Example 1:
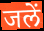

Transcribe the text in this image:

जलें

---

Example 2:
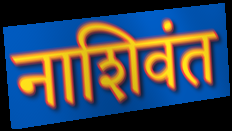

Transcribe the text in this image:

नाशिवंत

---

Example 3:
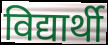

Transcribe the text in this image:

विद्यार्थी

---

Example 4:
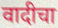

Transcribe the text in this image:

वादीचा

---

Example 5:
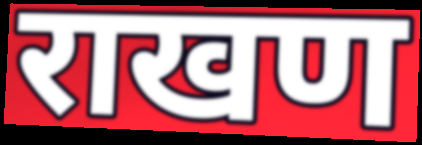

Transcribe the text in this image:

राखण